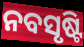
ନବସୃଷ୍ଟି